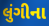
લુંગીના